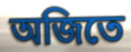
অজিতে